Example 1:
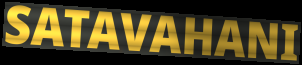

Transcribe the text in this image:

SATAVAHANI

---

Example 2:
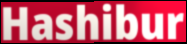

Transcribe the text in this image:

Hashibur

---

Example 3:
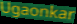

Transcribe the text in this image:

Ugaonkar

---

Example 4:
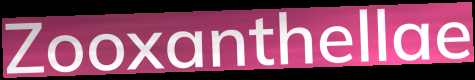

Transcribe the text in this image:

Zooxanthellae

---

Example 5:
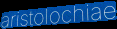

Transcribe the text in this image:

aristolochiae